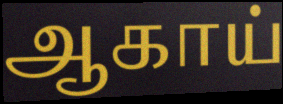
ஆகாய்